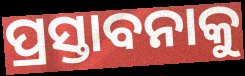
ପ୍ରସ୍ତାବନାକୁ